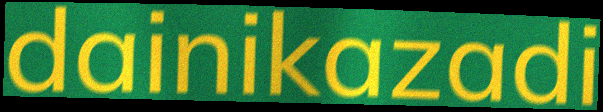
dainikazadi